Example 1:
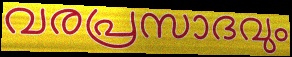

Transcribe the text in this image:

വരപ്രസാദവും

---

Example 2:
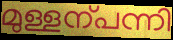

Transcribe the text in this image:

മുള്ളന്പന്നി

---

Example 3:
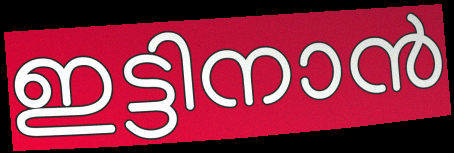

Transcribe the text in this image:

ഇട്ടിനാൻ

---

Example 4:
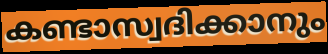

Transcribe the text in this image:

കണ്ടാസ്വദിക്കാനും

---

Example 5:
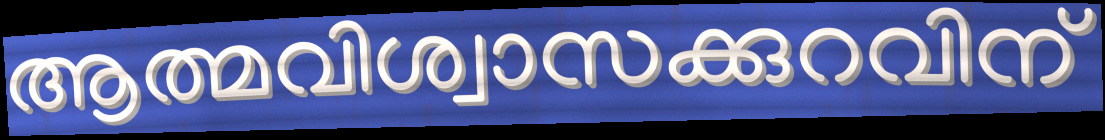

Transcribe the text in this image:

ആത്മവിശ്വാസക്കുറവിന്